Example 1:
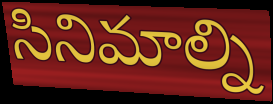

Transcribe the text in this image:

సినిమాల్ని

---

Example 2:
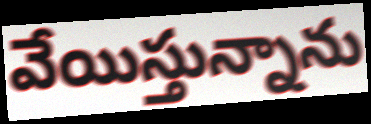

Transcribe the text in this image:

వేయిస్తున్నాను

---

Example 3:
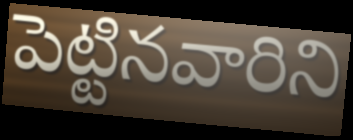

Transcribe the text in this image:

పెట్టినవారిని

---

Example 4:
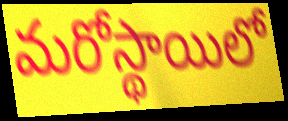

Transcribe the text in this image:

మరోస్థాయిలో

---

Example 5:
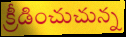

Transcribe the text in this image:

క్రీడించుచున్న